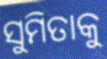
ସୁମିତାକୁ